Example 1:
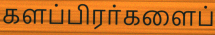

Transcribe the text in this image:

களப்பிரர்களைப்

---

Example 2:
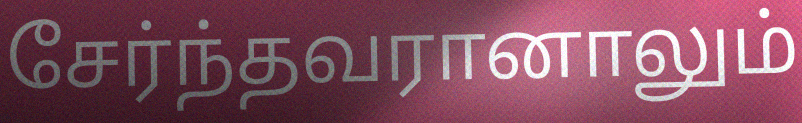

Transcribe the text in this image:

சேர்ந்தவரானாலும்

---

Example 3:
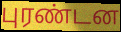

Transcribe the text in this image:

புரண்டன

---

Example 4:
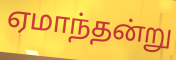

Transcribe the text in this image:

ஏமாந்தன்று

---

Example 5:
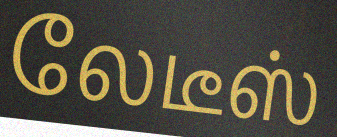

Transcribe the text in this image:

லேடீஸ்